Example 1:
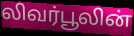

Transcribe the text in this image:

லிவர்பூலின்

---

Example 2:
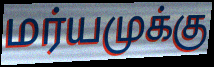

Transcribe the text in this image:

மர்யமுக்கு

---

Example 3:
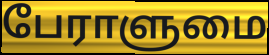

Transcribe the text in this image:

பேராளுமை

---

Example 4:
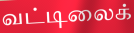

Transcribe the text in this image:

வட்டிலைக்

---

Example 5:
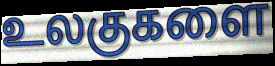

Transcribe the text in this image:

உலகுகளை